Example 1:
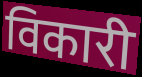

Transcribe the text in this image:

विकारी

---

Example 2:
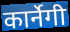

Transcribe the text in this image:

कार्नेगी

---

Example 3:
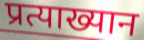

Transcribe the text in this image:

प्रत्याख्यान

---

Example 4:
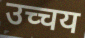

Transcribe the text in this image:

उच्चय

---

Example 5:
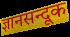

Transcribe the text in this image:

ज्ञानसन्दूक